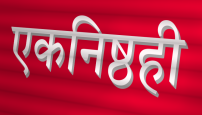
एकनिष्ठही